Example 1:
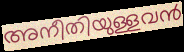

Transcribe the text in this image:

അനീതിയുള്ളവൻ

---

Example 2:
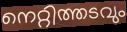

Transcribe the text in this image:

നെറ്റിത്തടവും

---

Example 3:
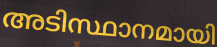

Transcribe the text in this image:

അടിസ്ഥാനമായി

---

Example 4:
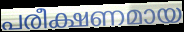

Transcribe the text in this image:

പരീക്ഷണമായ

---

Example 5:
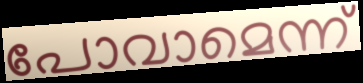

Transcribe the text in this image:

പോവാമെന്ന്